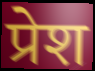
प्रेश